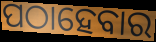
ପଠାହେବାର